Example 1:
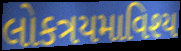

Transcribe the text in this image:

લોકત્રયમાવિશ્ય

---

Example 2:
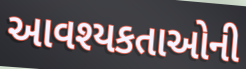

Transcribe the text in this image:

આવશ્યકતાઓની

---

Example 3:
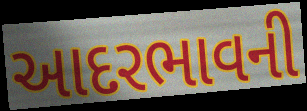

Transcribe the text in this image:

આદરભાવની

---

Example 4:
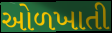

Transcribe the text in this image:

ઓળખાતી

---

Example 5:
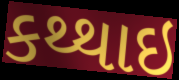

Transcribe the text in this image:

કથ્થાઇ